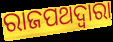
ରାଜପଥଦ୍ୱାରା